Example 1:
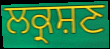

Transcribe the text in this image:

ਲਕ੍ਰਸ਼ਣ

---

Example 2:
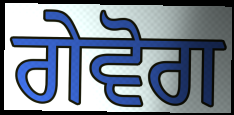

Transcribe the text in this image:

ਗੇਵੋਗ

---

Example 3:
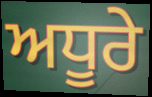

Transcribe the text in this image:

ਅਧੂਰੇ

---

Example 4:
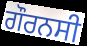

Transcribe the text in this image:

ਗੌਰਨਸੀ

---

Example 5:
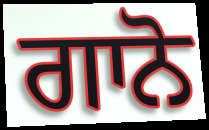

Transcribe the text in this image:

ਗਾਨੋ